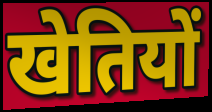
खेतियों